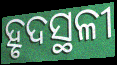
ହୃଦସ୍ଥଳୀ